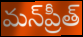
మన్‌ప్రీత్